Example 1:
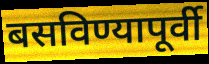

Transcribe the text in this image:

बसविण्यापूर्वी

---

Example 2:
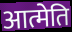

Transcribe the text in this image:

आत्मेति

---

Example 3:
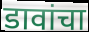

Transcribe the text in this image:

डावांचा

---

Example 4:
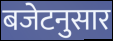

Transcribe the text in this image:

बजेटनुसार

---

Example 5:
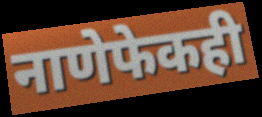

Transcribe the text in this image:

नाणेफेकही